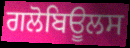
ਗਲੋਬਿਊਲਸ